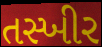
તસ્ખીર